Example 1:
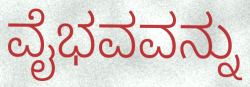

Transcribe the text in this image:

ವೈಭವವನ್ನು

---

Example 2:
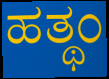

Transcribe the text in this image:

ಹತ್ಥಂ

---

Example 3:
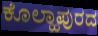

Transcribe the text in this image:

ಕೊಲ್ಹಾಪುರದ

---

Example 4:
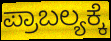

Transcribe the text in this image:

ಪ್ರಾಬಲ್ಯಕ್ಕೆ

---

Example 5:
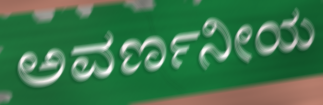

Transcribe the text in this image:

ಅವರ್ಣನೀಯ